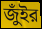
জুঁইর